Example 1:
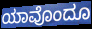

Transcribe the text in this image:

ಯಾವೊಂದೂ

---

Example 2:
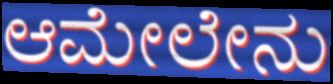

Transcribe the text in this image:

ಆಮೇಲೇನು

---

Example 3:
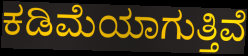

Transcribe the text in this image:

ಕಡಿಮೆಯಾಗುತ್ತಿವೆ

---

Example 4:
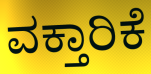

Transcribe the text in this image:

ವಕ್ತಾರಿಕೆ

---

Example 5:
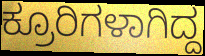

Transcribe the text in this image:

ಕ್ರೂರಿಗಳಾಗಿದ್ದ